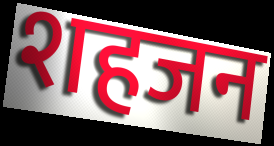
शहजन